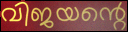
വിജയന്റെ